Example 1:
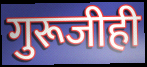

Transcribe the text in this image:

गुरूजीही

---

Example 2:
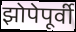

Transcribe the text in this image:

झोपेपूर्वी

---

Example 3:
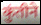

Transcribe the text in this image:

कुंतीने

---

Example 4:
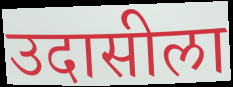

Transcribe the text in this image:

उदासीला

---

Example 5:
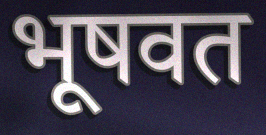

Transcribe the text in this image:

भूषवत